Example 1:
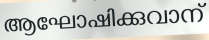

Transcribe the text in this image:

ആഘോഷിക്കുവാന്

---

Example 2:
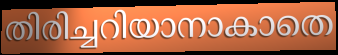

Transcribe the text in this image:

തിരിച്ചറിയാനാകാതെ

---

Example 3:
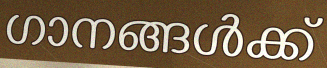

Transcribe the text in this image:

ഗാനങ്ങൾക്ക്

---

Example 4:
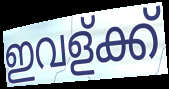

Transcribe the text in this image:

ഇവള്ക്ക്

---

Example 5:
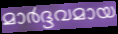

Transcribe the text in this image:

മാർദ്ദവമായ